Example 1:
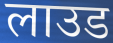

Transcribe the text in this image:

लाउड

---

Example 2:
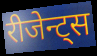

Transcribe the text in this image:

रीजेन्ट्स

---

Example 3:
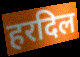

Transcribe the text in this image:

हरदिल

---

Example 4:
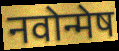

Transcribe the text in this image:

नवोन्‍मेष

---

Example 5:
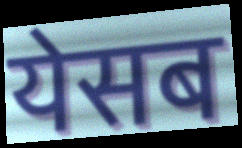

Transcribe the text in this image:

येसब